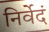
निर्वेदं